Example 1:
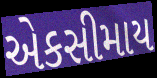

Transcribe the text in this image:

એકસીમાય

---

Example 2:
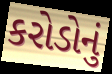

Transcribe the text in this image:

કરોડોનું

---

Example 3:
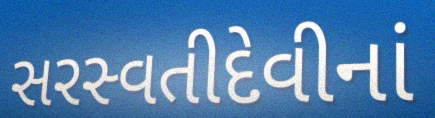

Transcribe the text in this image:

સરસ્વતીદેવીનાં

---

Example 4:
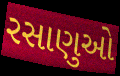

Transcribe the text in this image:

રસાણુઓ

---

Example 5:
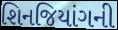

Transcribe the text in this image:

શિનજિયાંગની